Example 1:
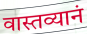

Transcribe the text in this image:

वास्तव्यानं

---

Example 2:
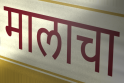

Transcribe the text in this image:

मालाचा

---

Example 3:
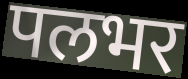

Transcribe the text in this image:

पलभर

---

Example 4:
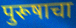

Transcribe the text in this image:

पुरूषाचा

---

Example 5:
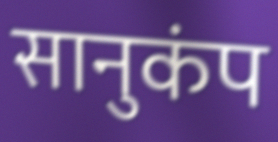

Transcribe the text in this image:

सानुकंप